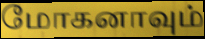
மோகனாவும்